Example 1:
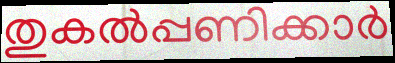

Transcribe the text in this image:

തുകൽപ്പണിക്കാർ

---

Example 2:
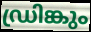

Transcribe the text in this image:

ഡ്രിങ്കും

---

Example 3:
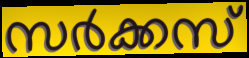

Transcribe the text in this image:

സർക്കസ്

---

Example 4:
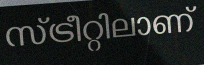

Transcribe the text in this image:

സ്ട്രീറ്റിലാണ്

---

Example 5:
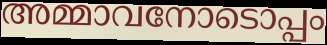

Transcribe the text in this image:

അമ്മാവനോടൊപ്പം